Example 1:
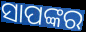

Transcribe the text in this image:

ସାପଙ୍କର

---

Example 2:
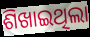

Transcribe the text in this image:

ଶିଖାଇଥିଲା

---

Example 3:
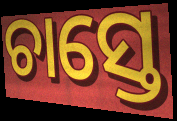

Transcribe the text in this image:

ଚାସ୍ତେ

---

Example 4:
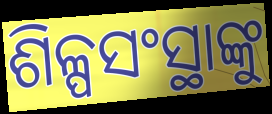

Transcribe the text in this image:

ଶିଳ୍ପସଂସ୍ଥାଙ୍କୁ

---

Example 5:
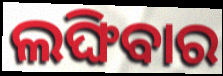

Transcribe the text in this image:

ଲଙ୍ଘିବାର